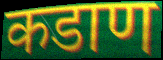
कडाण